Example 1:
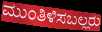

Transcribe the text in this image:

ಮುಂತಿಳಿಸಬಲ್ಲರು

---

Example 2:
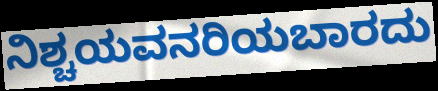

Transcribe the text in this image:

ನಿಶ್ಚಯವನರಿಯಬಾರದು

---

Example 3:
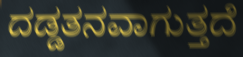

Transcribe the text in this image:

ದಡ್ಡತನವಾಗುತ್ತದೆ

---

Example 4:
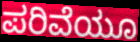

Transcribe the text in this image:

ಪರಿವೆಯೂ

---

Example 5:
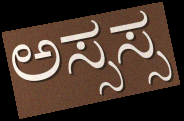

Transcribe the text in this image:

ಅಸ್ಸಸ್ಸ